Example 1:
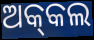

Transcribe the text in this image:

ଅକ୍‌କଲ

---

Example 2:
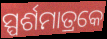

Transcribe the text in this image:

ସ୍ପର୍ଶମାତ୍ରକେ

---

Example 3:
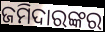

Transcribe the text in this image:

ଜମିଦାରଙ୍କର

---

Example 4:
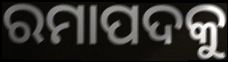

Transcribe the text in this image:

ରମାପଦକୁ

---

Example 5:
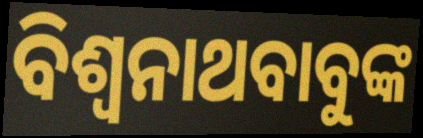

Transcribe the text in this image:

ବିଶ୍ୱନାଥବାବୁଙ୍କ